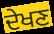
ਦੇਖਣ